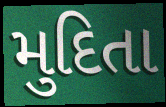
મુદિતા